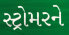
સ્ટ્રોમરને